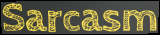
Sarcasm